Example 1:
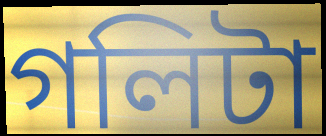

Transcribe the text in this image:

গলিটা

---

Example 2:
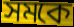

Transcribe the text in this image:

সমকে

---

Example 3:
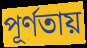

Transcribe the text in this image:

পূর্ণতায়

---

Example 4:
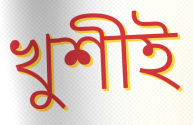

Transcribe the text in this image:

খুশীই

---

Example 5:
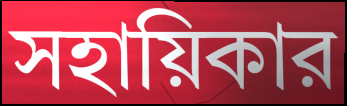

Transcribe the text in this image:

সহায়িকার